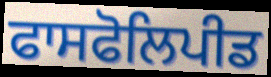
ਫਾਸਫੋਲਿਪੀਡ